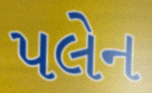
પલેન